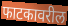
फाटकावरील